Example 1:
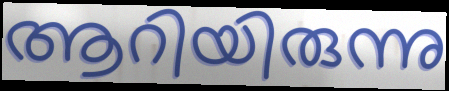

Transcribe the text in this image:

ആറിയിരുന്നു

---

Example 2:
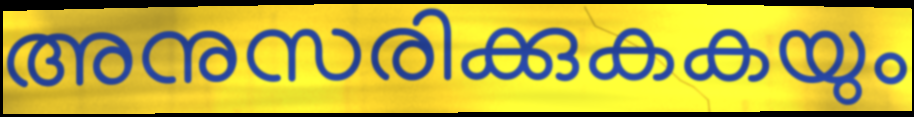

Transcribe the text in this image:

അനുസരിക്കുകകയും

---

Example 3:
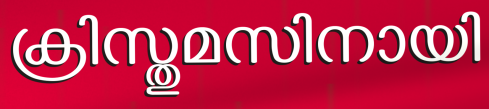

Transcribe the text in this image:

ക്രിസ്തുമസിനായി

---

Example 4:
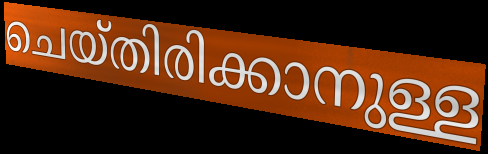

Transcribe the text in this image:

ചെയ്തിരിക്കാനുള്ള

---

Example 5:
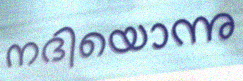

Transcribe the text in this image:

നദിയൊന്നു